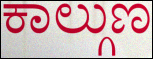
ಕಾಲ್ಗುಣ